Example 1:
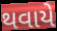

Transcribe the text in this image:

થવાયે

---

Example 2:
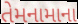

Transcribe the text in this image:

તેમનામાના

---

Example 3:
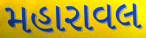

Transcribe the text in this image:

મહારાવલ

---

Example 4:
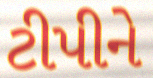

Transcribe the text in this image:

ટીપીને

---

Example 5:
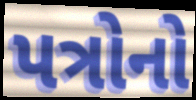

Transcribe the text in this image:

પત્રોનો